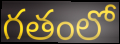
గతంలో